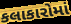
કલાકારોમાં